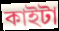
কাইটা